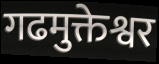
गढमुक्तेश्वर